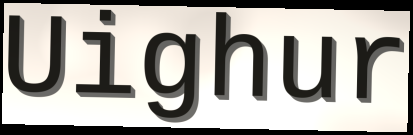
Uighur